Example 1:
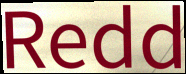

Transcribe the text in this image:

Redd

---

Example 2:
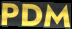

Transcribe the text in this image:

PDM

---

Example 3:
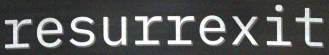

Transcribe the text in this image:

resurrexit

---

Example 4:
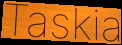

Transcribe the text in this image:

Taskia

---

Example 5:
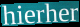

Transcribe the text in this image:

hierher